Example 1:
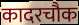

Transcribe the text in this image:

कादरचौक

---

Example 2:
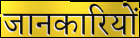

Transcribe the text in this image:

जानकारियों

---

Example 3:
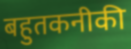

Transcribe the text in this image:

बहुतकनीकी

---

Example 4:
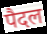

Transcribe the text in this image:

पैदल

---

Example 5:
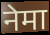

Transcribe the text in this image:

नेमा